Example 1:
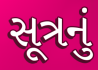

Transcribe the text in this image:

સૂત્રનું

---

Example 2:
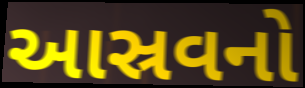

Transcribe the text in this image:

આસ્રવનો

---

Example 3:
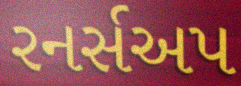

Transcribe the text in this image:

રનર્સઅપ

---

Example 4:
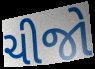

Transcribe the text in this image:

ચીજો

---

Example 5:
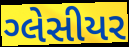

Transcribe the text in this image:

ગ્લેસીયર